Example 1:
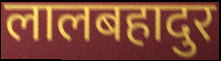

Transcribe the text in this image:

लालबहादुर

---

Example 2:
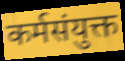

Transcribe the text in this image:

कर्मसंयुक्त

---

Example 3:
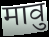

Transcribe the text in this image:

मावु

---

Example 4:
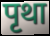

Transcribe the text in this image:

पृथा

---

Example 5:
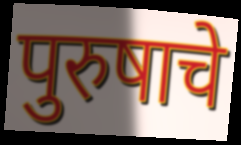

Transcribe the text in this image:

पुरुषाचे